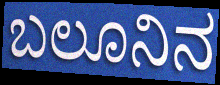
ಬಲೂನಿನ